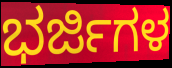
ಭರ್ಜಿಗಳ